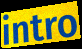
intro